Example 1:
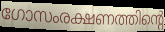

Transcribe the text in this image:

ഗോസംരക്ഷണത്തിന്റെ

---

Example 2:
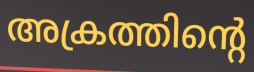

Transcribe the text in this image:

അക്രത്തിന്റെ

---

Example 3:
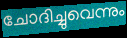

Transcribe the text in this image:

ചോദിച്ചുവെന്നും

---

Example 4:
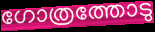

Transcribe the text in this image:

ഗോത്രത്തോടു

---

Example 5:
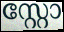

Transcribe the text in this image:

സ്റ്റോ